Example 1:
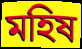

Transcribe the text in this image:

মহিষ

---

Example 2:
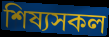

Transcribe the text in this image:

শিষ্যসকল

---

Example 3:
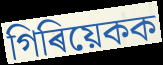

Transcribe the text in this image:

গিৰিয়েকক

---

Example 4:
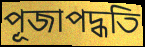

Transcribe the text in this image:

পূজাপদ্ধতি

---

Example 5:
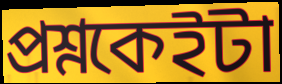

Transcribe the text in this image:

প্ৰশ্নকেইটা